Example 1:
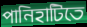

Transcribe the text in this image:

পানিহাটিতে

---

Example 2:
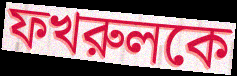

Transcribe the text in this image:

ফখরুলকে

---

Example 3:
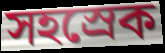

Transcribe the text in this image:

সহস্রেক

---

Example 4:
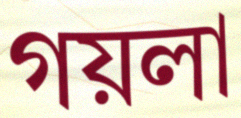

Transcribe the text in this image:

গয়লা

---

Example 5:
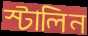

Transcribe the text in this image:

স্টালিন